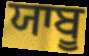
ਯਾਬੂ